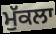
ਮੁੱਕਲਾ